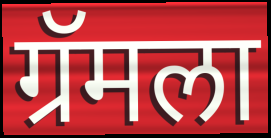
ग्रॅमला